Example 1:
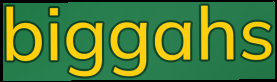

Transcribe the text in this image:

biggahs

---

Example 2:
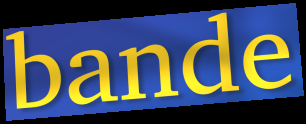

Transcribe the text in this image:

bande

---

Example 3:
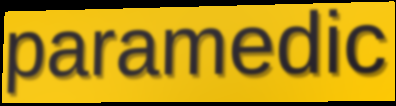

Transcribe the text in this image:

paramedic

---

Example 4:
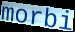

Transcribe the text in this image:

morbi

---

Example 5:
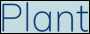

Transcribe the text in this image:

Plant